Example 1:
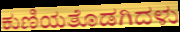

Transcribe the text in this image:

ಕುಣಿಯತೊಡಗಿದಳು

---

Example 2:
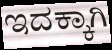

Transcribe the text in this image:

ಇದಕ್ಕಾಗಿ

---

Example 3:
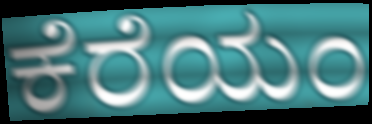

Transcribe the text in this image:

ಕೆರೆಯಂ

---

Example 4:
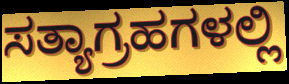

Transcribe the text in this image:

ಸತ್ಯಾಗ್ರಹಗಳಲ್ಲಿ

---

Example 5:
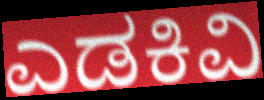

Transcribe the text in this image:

ಎಡಕಿವಿ